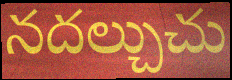
నదల్చుచు